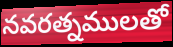
నవరత్నములతో